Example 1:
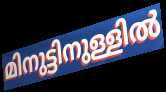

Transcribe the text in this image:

മിനുട്ടിനുള്ളിൽ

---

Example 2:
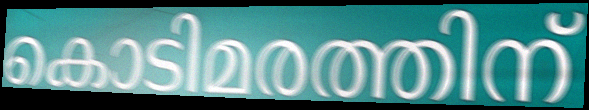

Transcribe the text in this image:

കൊടിമരത്തിന്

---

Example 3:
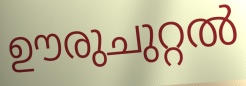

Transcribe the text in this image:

ഊരുചുറ്റൽ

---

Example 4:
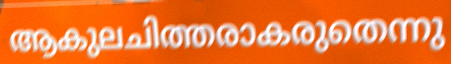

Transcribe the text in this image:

ആകുലചിത്തരാകരുതെന്നു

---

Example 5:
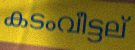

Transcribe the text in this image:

കടംവീട്ടല്